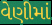
વેણીમાં